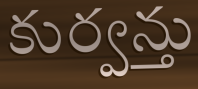
కుర్వన్తు